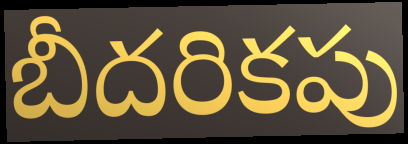
బీదరికపు